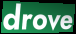
drove